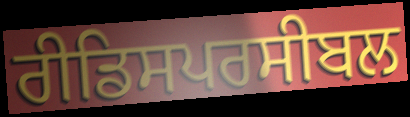
ਰੀਡਿਸਪਰਸੀਬਲ